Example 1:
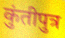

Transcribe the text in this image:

कुंतीपुत्र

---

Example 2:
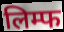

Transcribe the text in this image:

लिम्फ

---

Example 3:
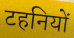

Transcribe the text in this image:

टहनियों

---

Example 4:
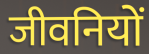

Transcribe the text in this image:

जीवनियों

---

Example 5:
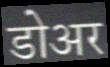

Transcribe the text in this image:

डोअर